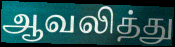
ஆவலித்து